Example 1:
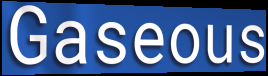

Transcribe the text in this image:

Gaseous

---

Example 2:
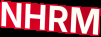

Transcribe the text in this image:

NHRM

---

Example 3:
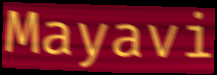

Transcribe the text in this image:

Mayavi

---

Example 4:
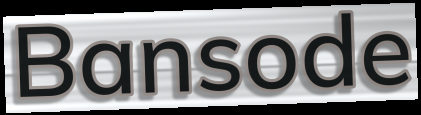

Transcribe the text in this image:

Bansode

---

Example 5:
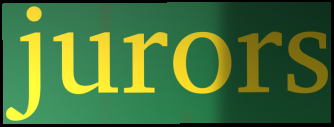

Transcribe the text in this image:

jurors